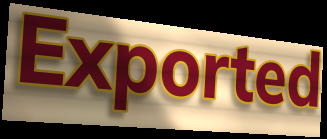
Exported